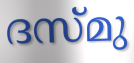
ദസ്മു